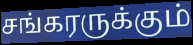
சங்கரருக்கும்